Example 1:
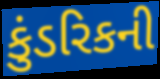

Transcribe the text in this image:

કુંડરિકની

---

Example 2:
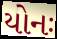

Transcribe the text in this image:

યોનઃ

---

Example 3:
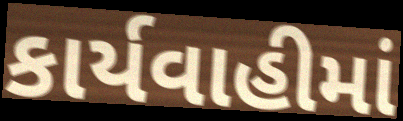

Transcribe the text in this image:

કાર્યવાહીમાં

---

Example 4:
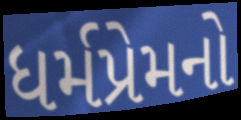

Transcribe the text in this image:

ધર્મપ્રેમનો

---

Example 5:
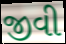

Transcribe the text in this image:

જીવી